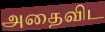
அதைவிட